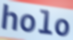
holo